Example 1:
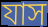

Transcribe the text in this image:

যাস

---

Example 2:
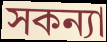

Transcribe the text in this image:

সকন্যা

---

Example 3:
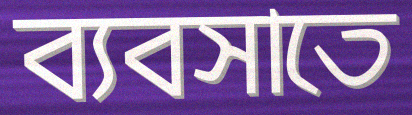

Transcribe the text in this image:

ব্যবসাতে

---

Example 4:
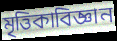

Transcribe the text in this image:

মৃত্তিকাবিজ্ঞান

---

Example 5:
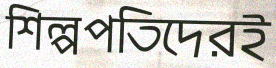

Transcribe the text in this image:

শিল্পপতিদেরই